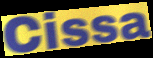
Cissa